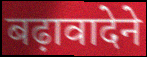
बढ़ावादेने